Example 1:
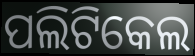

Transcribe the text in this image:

ପଲିଟିକେଲ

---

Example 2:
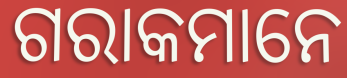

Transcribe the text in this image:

ଗରାକମାନେ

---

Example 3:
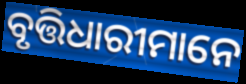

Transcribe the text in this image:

ବୃତ୍ତିଧାରୀମାନେ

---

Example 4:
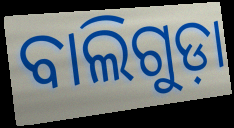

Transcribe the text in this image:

ବାଲିଗୁଡ଼ା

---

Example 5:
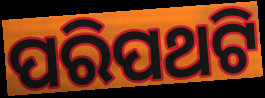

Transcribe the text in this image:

ପରିପଥଟି